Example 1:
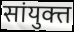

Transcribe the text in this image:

सांयुक्त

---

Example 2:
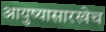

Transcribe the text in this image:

आयुष्यासारखेच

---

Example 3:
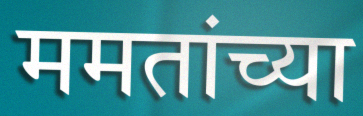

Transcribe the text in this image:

ममतांच्या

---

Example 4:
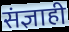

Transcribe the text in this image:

संज्ञाही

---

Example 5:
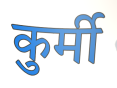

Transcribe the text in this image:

कुर्मी